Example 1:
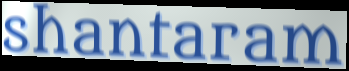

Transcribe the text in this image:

shantaram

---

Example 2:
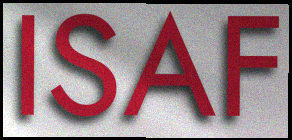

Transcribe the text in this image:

ISAF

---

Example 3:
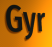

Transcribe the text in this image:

Gyr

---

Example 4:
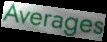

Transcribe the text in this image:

Averages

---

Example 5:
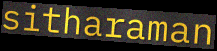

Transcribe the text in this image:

sitharaman